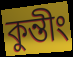
কুন্তীং